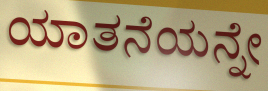
ಯಾತನೆಯನ್ನೇ